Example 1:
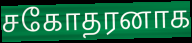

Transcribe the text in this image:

சகோதரனாக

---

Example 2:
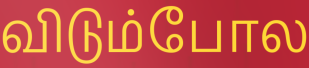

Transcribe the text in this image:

விடும்போல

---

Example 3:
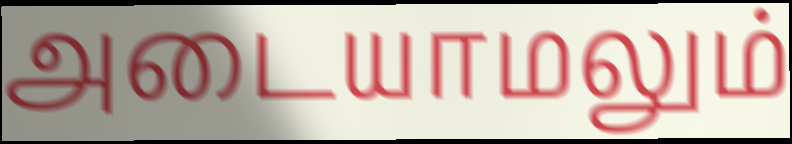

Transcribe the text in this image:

அடையாமலும்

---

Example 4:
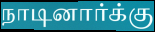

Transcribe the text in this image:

நாடினார்க்கு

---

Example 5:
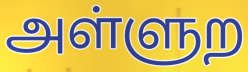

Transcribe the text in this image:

அள்ளுற